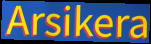
Arsikera